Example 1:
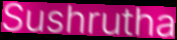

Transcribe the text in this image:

Sushrutha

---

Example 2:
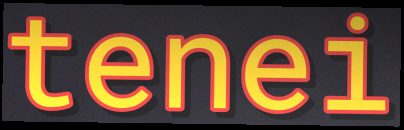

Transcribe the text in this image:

tenei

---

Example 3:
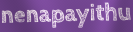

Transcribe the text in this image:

nenapayithu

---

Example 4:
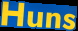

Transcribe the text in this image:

Huns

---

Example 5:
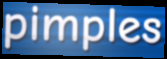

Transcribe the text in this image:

pimples